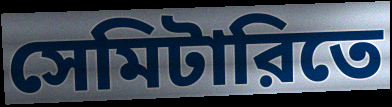
সেমিটারিতে